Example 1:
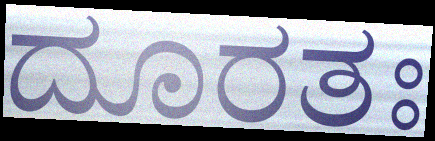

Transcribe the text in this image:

ದೂರತಃ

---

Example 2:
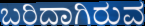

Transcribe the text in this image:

ಬರಿದಾಗಿರುವ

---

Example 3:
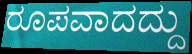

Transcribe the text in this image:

ರೂಪವಾದದ್ದು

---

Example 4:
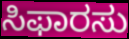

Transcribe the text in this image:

ಸಿಫಾರಸು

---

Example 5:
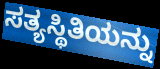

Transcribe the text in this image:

ಸತ್ಯಸ್ಥಿತಿಯನ್ನು